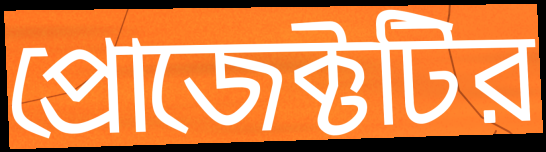
প্রোজেক্টটির